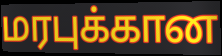
மரபுக்கான